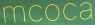
mcoca